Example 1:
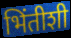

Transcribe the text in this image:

भिंतीशी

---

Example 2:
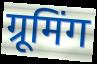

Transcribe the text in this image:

ग्रूमिंग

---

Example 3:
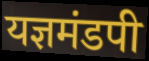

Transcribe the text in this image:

यज्ञमंडपी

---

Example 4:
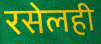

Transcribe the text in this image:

रसेलही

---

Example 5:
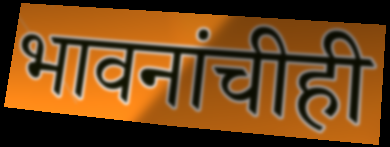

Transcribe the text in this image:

भावनांचीही